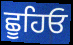
ਛੂਹਿਓ